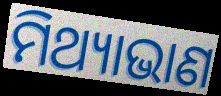
ମିଥ୍ୟାଭାଣ